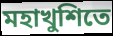
মহাখুশিতে